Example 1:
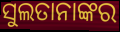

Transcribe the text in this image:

ସୁଲତାନାଙ୍କର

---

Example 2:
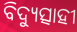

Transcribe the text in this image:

ବିଦ୍ୟୁତ୍ସାହୀ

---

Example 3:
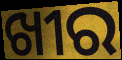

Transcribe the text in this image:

ଖୀର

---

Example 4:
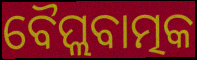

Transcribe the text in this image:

ବୈପ୍ଲବାତ୍ମକ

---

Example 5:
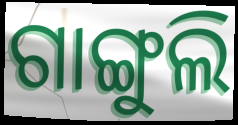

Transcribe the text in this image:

ଗାଙ୍ଗୁଲି